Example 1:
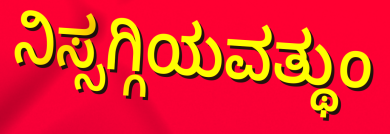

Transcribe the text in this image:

ನಿಸ್ಸಗ್ಗಿಯವತ್ಥುಂ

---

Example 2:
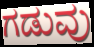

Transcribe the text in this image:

ಗಡುವು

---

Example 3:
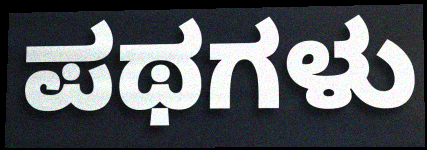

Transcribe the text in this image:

ಪಥಗಳು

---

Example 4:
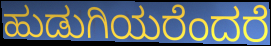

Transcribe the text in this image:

ಹುಡುಗಿಯರೆಂದರೆ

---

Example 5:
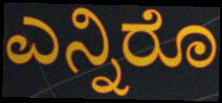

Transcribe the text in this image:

ಎನ್ನಿರೊ